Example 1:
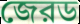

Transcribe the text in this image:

জেরড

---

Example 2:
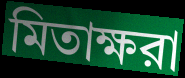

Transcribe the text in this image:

মিতাক্ষরা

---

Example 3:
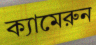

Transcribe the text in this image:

ক্যামেরুন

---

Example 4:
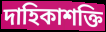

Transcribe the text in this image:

দাহিকাশক্তি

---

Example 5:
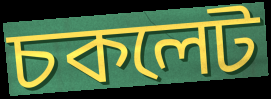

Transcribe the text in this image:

চকলেট